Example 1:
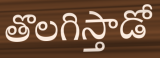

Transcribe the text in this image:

తొలగిస్తాడో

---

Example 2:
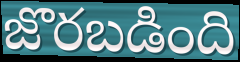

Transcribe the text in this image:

జొరబడింది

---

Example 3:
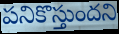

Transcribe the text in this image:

పనికొస్తుందని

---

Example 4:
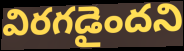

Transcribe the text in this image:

విరగడైందని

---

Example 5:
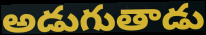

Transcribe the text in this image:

అడుగుతాడు